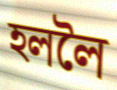
হললৈ